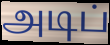
அடிப்